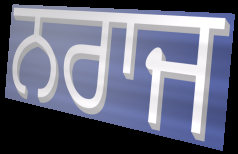
ਨਰਾਜ